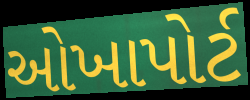
ઓખાપોર્ટ